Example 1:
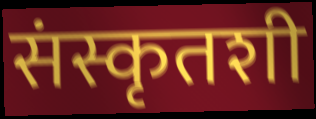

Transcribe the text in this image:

संस्कृतशी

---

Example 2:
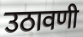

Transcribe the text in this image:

उठावणी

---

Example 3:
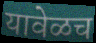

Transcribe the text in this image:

यावेळच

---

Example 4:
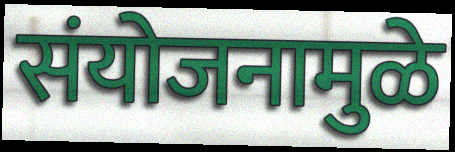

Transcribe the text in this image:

संयोजनामुळे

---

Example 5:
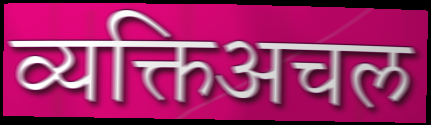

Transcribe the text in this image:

व्यक्तिअचल